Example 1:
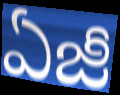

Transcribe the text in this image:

ఏజీ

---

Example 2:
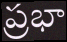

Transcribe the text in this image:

ప్రభా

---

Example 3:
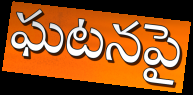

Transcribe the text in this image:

ఘటనపై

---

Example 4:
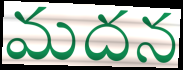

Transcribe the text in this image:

మదన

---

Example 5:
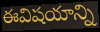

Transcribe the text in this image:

ఈవిషయాన్ని